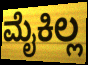
ಮೈಕಿಲ್ಲ